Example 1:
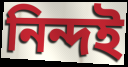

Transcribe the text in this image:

নিন্দই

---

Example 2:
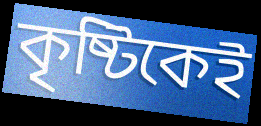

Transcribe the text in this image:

কৃষ্টিকেই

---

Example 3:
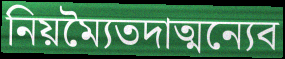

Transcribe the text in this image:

নিয়ম্যৈতদাত্মন্যেব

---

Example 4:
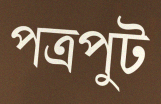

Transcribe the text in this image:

পত্রপুট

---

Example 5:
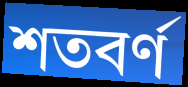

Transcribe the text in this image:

শতবর্ণ